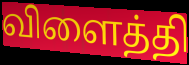
விளைத்தி